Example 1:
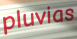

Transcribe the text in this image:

pluvias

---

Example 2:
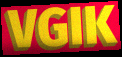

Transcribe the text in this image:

VGIK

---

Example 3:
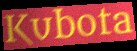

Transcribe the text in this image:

Kubota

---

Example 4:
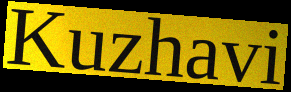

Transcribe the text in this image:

Kuzhavi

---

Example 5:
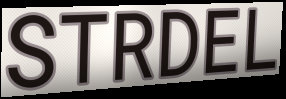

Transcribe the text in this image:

STRDEL